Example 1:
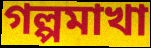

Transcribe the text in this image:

গল্পমাখা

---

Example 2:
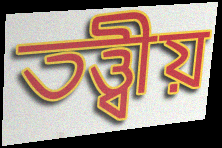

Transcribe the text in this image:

তত্ত্বীয়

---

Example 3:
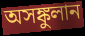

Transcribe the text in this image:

অসঙ্কুলান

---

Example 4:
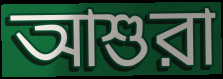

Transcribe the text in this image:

আশুরা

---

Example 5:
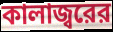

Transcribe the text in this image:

কালাজ্বরের